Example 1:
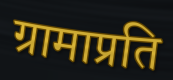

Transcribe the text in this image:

ग्रामाप्रति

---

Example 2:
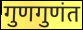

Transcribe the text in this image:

गुणगुणंत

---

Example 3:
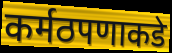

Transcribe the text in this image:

कर्मठपणाकडे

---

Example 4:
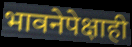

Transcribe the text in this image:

भावनेपेक्षाही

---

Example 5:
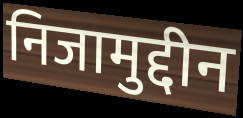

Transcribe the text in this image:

निजामुद्दीन